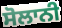
ਸੋਲਾਨੀ